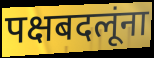
पक्षबदलूंना